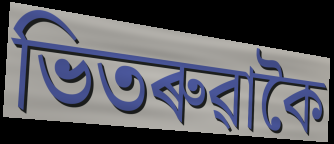
ভিতৰুৱাকৈ